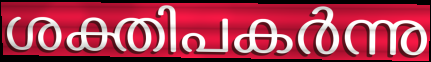
ശക്തിപകർന്നു